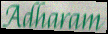
Adharam